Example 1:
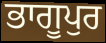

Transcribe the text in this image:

ਭਾਗੂਪੁਰ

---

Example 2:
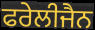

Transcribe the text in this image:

ਫਰੇਲੀਜੈਨ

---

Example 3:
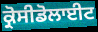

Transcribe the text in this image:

ਕ੍ਰੋਸੀਡੋਲਾਈਟ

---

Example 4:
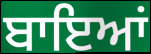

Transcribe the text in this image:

ਬਾਇਆਂ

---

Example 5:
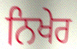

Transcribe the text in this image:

ਨਿਖੇਰ